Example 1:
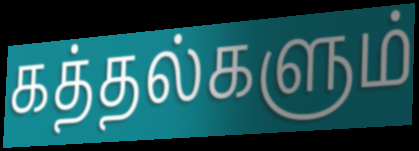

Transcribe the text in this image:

கத்தல்களும்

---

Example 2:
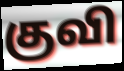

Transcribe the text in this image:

குவி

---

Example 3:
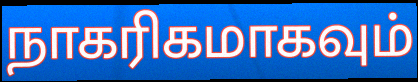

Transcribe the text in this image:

நாகரிகமாகவும்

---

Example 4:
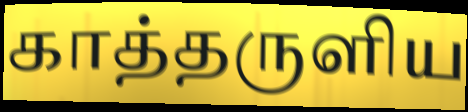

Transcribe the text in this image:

காத்தருளிய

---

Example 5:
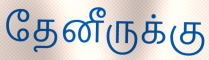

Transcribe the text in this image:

தேனீருக்கு